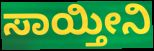
ಸಾಯ್ತೀನಿ